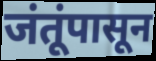
जंतूंपासून